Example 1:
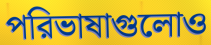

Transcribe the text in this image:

পরিভাষাগুলোও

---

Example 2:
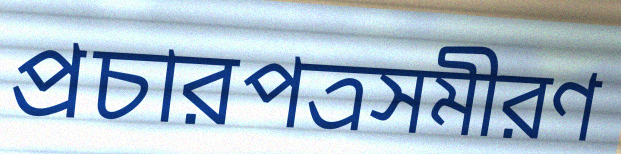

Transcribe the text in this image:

প্রচারপত্রসমীরণ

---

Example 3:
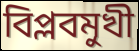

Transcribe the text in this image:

বিপ্লবমুখী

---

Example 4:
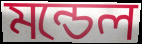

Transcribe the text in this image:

মন্ডেল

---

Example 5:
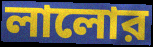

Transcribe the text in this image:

লালোর